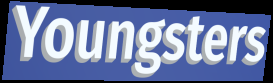
Youngsters